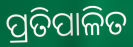
ପ୍ରତିପାଳିତ